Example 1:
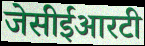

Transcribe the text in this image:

जेसीईआरटी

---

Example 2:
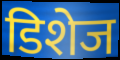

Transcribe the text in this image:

डिशेज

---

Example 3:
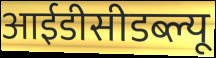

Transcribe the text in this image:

आईडीसीडब्ल्यू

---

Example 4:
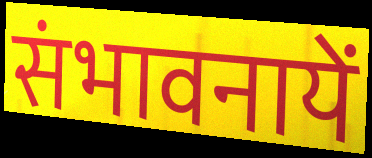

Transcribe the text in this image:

संभावनायें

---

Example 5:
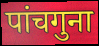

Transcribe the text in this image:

पांचगुना